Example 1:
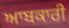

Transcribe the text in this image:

ਆਬਕਾਰੀ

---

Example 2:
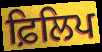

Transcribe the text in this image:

ਫ਼ਿਲਿਪ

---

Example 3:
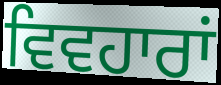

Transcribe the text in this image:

ਵਿਵਹਾਰਾਂ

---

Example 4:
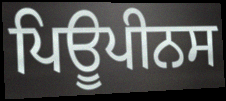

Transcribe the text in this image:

ਪਿਊਪੀਨਸ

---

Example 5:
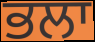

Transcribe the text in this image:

ਭਲਾ